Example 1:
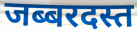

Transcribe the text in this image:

जब्बरदस्त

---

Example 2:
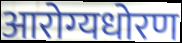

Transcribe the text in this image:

आरोग्यधोरण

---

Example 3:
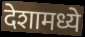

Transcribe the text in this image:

देशामध्ये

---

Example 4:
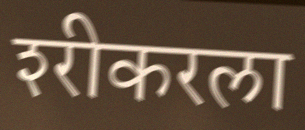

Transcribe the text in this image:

श्रीकरला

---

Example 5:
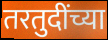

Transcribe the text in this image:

तरतुदींच्या